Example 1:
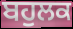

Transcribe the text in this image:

ਬਹੁਲਕ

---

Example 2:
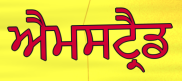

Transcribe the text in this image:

ਐਮਸਟ੍ਰੈਡ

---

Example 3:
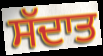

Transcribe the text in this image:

ਸੱਦਾਤ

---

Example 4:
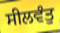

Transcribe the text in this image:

ਸੀਲਵੰਤੁ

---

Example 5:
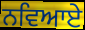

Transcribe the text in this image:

ਨਵਿਆਏ